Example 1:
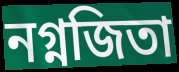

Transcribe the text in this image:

নগ্নজিতা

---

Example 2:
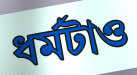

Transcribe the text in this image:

ধর্মটাও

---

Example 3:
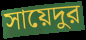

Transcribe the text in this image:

সায়েদুর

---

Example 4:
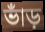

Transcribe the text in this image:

ভাঁড়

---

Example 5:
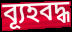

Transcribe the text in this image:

ব্যূহবদ্ধ